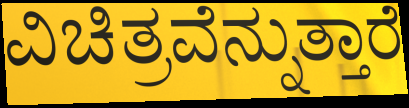
ವಿಚಿತ್ರವೆನ್ನುತ್ತಾರೆ